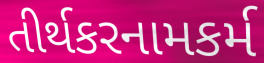
તીર્થકરનામકર્મ